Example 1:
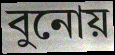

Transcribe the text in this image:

বুনোয়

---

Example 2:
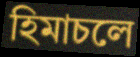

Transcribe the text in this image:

হিমাচলে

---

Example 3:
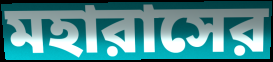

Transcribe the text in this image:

মহারাসের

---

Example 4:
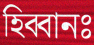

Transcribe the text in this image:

হিব্বানঃ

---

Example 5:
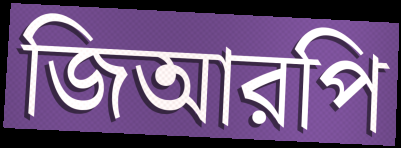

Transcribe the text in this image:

জিআরপি